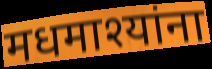
मधमाश्यांना